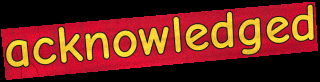
acknowledged